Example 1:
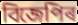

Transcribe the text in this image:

বিজেপিৰ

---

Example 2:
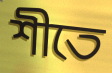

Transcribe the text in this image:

শীতে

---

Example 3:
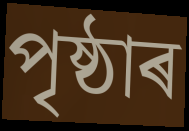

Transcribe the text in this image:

পৃষ্ঠাৰ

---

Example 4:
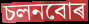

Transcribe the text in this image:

চলনবোৰ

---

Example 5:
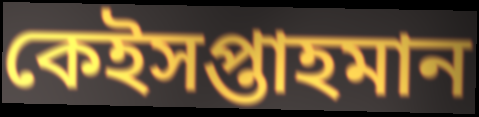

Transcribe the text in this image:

কেইসপ্তাহমান